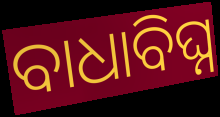
ବାଧାବିଘ୍ନ